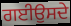
ਗਈਉਸਦੇ